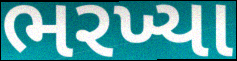
ભરખ્યા